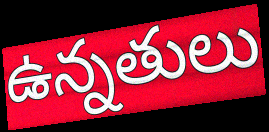
ఉన్నతులు